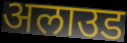
अलाउड